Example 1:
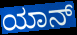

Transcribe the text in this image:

ಯಾನ್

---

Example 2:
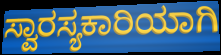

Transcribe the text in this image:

ಸ್ವಾರಸ್ಯಕಾರಿಯಾಗಿ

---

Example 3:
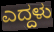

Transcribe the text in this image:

ಎದ್ದಳು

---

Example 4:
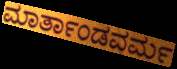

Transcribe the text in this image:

ಮಾರ್ತಾಂಡವರ್ಮ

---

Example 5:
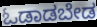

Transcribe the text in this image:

ಓಡಾಡಬೇಡ